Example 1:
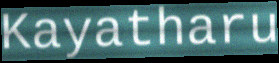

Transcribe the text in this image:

Kayatharu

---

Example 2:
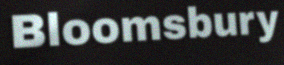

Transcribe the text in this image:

Bloomsbury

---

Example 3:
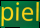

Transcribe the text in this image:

piel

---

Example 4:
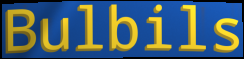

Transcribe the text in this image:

Bulbils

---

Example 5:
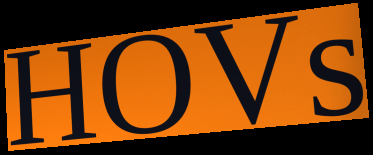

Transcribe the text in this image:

HOVs